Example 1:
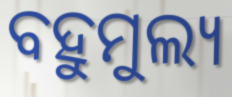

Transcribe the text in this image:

ବହୁମୁଲ୍ୟ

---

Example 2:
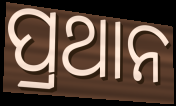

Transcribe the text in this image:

ପ୍ରଥାନ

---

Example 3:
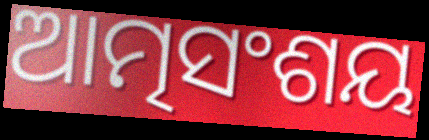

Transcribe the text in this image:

ଆତ୍ମସଂଶୟ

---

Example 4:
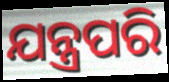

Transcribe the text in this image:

ଯନ୍ତ୍ରପରି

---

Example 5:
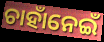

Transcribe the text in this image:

ଚାହାଁନେଇଁ